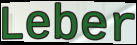
Leber